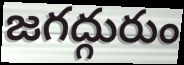
జగద్గురుం